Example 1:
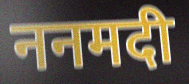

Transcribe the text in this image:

ननमदी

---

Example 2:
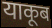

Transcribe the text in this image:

याकूब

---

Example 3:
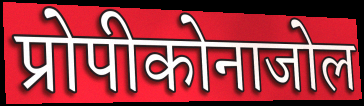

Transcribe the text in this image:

प्रोपीकोनाजोल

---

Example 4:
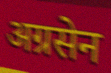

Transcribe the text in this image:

अग्रसेन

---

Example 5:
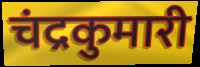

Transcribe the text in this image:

चंद्रकुमारी